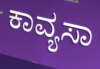
ಕಾವ್ಯಸಾ